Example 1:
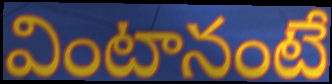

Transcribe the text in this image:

వింటానంటే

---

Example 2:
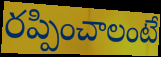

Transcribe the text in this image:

రప్పించాలంటే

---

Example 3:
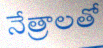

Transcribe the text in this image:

నేత్రాలతో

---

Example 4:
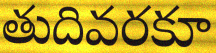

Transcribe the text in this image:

తుదివరకూ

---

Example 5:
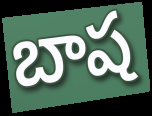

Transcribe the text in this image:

బాష